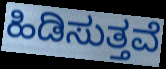
ಹಿಡಿಸುತ್ತವೆ